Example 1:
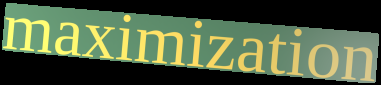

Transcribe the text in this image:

maximization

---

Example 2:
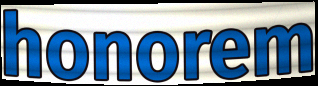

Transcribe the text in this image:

honorem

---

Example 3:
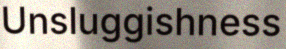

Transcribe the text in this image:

Unsluggishness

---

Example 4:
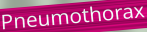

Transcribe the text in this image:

Pneumothorax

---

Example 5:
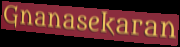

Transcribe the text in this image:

Gnanasekaran